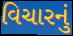
વિચારનું